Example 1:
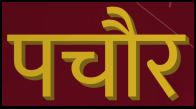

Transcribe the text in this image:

पचौर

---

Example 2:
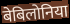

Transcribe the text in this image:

बेबिलोनिया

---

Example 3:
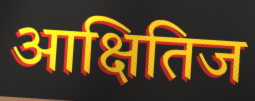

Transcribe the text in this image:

आक्षितिज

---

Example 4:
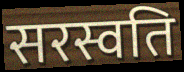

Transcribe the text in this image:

सरस्वति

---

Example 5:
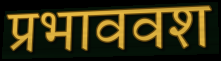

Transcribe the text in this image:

प्रभाववश